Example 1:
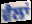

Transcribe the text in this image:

ਵੈਲਾਂ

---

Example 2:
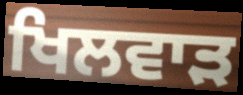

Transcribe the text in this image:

ਖਿਲਵਾੜ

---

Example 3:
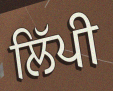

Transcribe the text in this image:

ਲਿੱਪੀ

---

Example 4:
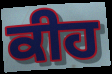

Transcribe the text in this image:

ਕੀਹ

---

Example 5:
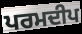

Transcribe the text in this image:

ਪਰਮਦੀਪ